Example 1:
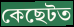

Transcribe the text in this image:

কেছেটত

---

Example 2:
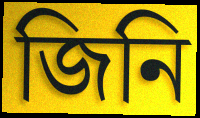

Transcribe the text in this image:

জিনি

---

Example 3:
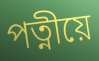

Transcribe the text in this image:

পত্নীয়ে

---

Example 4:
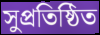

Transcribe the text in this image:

সুপ্ৰতিষ্ঠিত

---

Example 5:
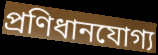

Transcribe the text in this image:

প্ৰণিধানযোগ্য